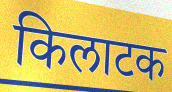
किलाटक